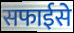
सफाईसे